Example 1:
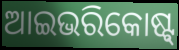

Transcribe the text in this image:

ଆଇଭରିକୋଷ୍ଟ୍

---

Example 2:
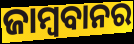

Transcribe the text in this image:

ଜାମ୍ବବାନର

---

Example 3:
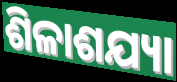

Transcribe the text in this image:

ଶିଳାଶଯ୍ୟା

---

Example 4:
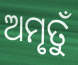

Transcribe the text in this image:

ଅମୃତୁଁ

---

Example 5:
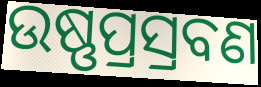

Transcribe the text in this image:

ଉଷ୍ଣପ୍ରସ୍ରବଣ